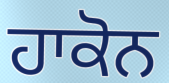
ਹਾਕੋਨ